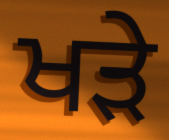
ਖਡ਼ੇ